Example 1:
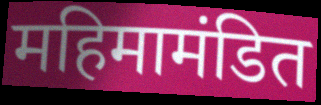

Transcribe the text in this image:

महिमामंडित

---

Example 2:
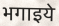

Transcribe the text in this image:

भगाइये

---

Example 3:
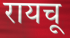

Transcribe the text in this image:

रायचू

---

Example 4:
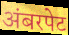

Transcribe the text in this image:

अंबरपेट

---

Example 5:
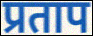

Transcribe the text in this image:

प्रताप